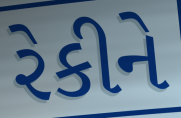
રેકીને